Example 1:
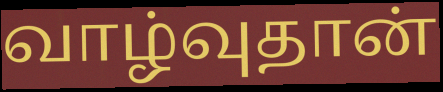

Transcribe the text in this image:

வாழ்வுதான்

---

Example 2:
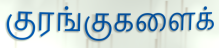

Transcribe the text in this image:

குரங்குகளைக்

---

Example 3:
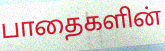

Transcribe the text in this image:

பாதைகளின்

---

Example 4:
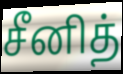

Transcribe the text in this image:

சீனித்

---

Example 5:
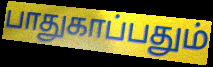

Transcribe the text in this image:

பாதுகாப்பதும்